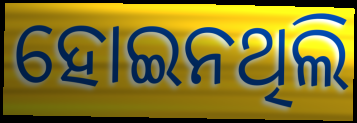
ହୋଇନଥିଲି